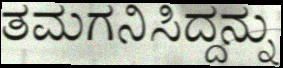
ತಮಗನಿಸಿದ್ದನ್ನು